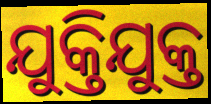
ଯୁକ୍ତିଯୁକ୍ତ